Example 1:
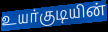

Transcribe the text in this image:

உயர்குடியின்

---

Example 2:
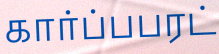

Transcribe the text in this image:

கார்ப்பபரட்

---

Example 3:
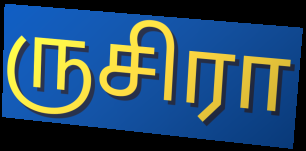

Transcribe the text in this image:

ருசிரா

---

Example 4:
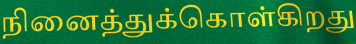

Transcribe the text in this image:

நினைத்துக்கொள்கிறது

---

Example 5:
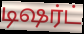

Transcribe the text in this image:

டிஷர்ட்